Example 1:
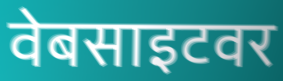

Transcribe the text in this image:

वेबसाइटवर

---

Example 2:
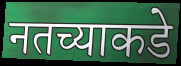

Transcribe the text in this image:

नतच्याकडे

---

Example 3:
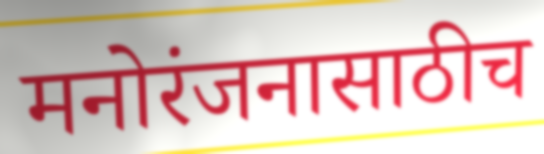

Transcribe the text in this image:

मनोरंजनासाठीच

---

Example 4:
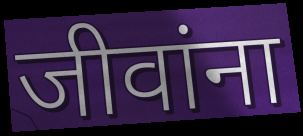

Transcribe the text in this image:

जीवांना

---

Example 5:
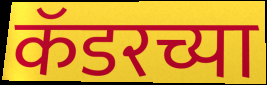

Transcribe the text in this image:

कॅडरच्या